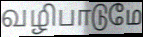
வழிபாடுமே